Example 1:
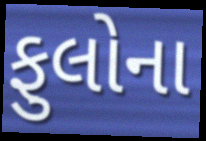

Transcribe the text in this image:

ફુલોના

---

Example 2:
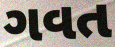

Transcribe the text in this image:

ગવત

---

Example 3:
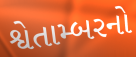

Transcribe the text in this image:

શ્વેતામ્બરનો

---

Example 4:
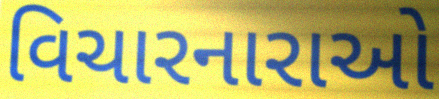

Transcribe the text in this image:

વિચારનારાઓ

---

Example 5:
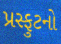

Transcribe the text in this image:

પ્રસ્ફુટનો